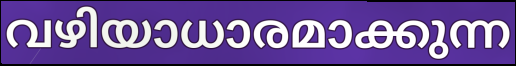
വഴിയാധാരമാക്കുന്ന